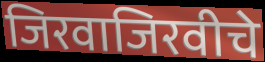
जिरवाजिरवीचे